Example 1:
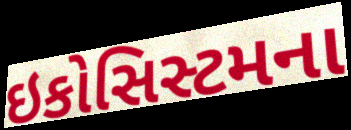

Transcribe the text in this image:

ઇકોસિસ્ટમના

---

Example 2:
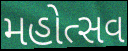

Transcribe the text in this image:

મહોત્સવ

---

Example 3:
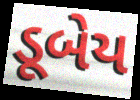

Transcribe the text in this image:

ડૂબેય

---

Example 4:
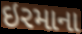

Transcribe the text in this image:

ઇરમાના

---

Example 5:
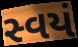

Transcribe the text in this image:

સ્વયં